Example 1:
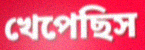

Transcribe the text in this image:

খেপেছিস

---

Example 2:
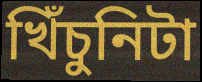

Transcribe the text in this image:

খিঁচুনিটা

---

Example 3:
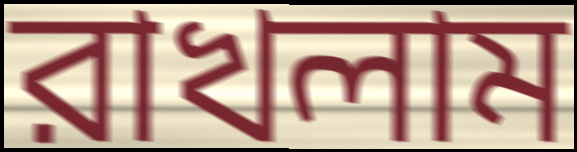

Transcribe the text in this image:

রাখলাম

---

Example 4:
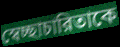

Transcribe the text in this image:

স্বেচ্ছাচারিতাকে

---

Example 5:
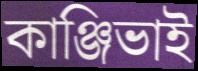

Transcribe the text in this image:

কাঞ্জিভাই